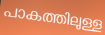
പാകത്തിലുള്ള